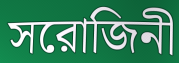
সরোজিনী